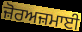
ਜ਼ੋਰਅਜ਼ਮਾਈ